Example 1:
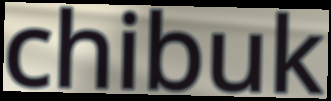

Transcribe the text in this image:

chibuk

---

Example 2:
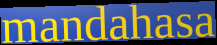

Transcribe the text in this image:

mandahasa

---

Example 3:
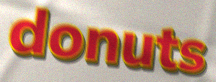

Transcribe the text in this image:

donuts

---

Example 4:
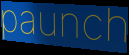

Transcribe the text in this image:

paunch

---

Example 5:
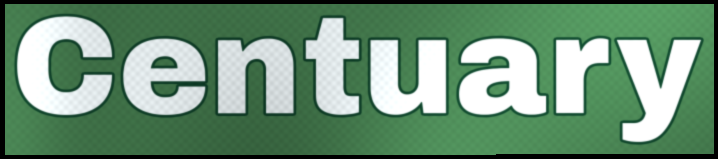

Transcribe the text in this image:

Centuary